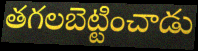
తగలబెట్టించాడు